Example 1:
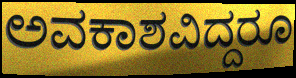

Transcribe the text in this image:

ಅವಕಾಶವಿದ್ದರೂ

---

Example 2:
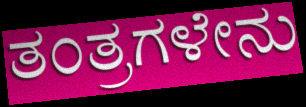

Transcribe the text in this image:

ತಂತ್ರಗಳೇನು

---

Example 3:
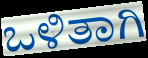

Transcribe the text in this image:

ಒಳಿತಾಗಿ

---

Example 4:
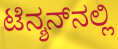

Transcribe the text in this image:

ಟೆನ್ಶನ್‌ನಲ್ಲಿ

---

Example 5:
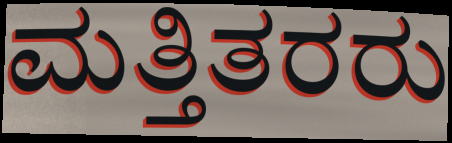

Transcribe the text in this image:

ಮತ್ತಿತರರು